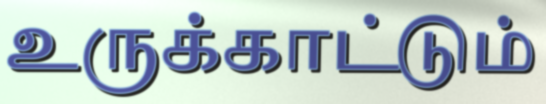
உருக்காட்டும்